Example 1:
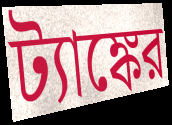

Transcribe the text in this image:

ট্যাঙ্কের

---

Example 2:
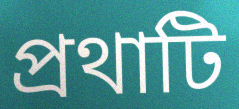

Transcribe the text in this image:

প্রথাটি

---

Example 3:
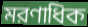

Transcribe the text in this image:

মরণাধিক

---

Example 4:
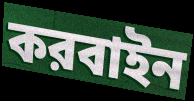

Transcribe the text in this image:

করবাইন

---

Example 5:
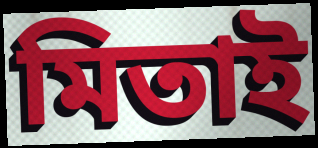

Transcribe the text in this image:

মিতাই